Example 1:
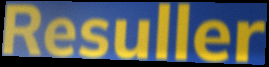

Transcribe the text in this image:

Resuller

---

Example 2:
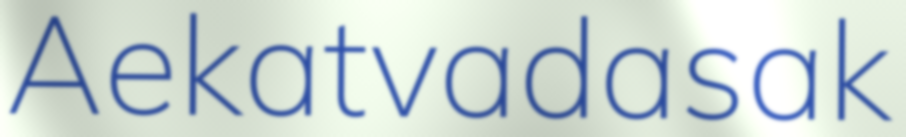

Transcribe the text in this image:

Aekatvadasak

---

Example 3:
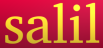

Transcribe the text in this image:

salil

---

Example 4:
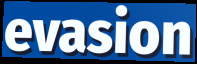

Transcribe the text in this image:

evasion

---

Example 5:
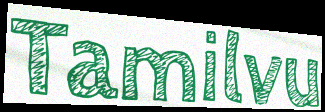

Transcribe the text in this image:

Tamilvu